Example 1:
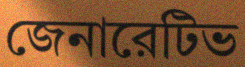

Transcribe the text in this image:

জেনারেটিভ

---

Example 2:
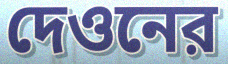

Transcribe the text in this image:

দেওনের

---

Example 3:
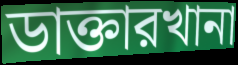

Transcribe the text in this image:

ডাক্তারখানা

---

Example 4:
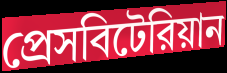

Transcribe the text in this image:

প্রেসবিটেরিয়ান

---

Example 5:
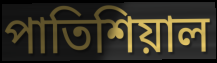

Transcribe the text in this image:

পাতিশিয়াল